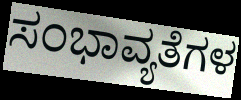
ಸಂಭಾವ್ಯತೆಗಳ